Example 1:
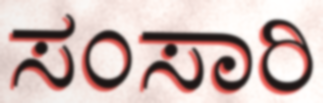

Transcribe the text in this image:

ಸಂಸಾರಿ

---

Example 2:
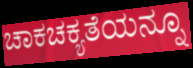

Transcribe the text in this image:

ಚಾಕಚಕ್ಯತೆಯನ್ನೂ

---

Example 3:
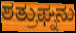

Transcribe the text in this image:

ಶತ್ರುಘ್ನನು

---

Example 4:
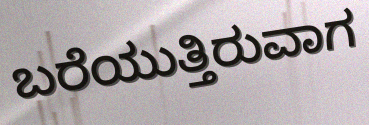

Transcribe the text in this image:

ಬರೆಯುತ್ತಿರುವಾಗ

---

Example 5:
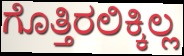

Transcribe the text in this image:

ಗೊತ್ತಿರಲಿಕ್ಕಿಲ್ಲ